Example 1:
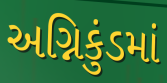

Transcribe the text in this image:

અગ્નિકુંડમાં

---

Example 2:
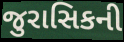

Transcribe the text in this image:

જુરાસિકની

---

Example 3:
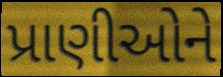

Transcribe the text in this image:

પ્રાણીઓને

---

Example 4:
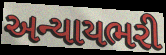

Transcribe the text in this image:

અન્યાયભરી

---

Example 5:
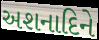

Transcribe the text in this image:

અશનાદિને